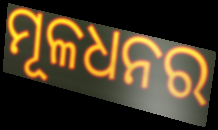
ମୂଳଧନର